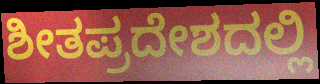
ಶೀತಪ್ರದೇಶದಲ್ಲಿ